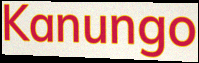
Kanungo